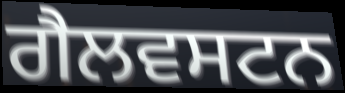
ਗੈਲਵਸਟਨ